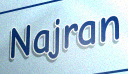
Najran